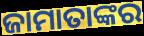
ଜାମାତାଙ୍କର